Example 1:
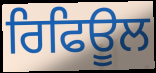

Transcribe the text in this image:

ਰਿਫਿਊਲ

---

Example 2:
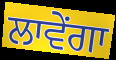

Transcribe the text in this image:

ਲਾਵੇਂਗਾ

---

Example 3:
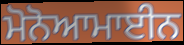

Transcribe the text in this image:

ਮੋਨੋਆਮਾਈਨ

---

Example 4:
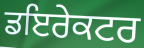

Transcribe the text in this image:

ਡਇਰੇਕਟਰ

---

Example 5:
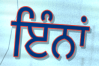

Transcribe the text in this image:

ਇੰਨਾਂ